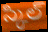
స్కిల్